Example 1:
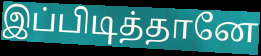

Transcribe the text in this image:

இப்பிடித்தானே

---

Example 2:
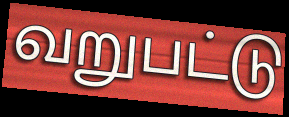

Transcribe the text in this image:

வறுபட்டு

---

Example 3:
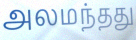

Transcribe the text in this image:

அலமந்தது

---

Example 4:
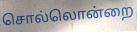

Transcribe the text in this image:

சொல்லொன்றை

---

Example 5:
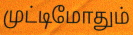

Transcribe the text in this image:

முட்டிமோதும்